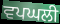
ਵਪਘਲੀ